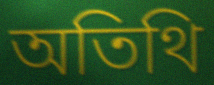
অতিথি